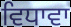
ਵਿਧਾਵਾ